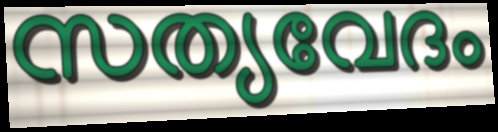
സത്യവേദം